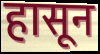
हासून